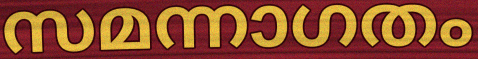
സമന്നാഗതം